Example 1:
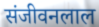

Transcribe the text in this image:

संजीवनलाल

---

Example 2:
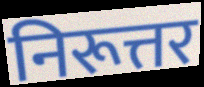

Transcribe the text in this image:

निरूत्तर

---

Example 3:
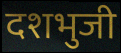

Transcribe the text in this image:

दशभुजी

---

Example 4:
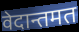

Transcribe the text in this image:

वेदान्तमत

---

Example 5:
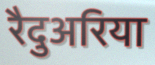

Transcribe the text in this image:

रैदुअरिया